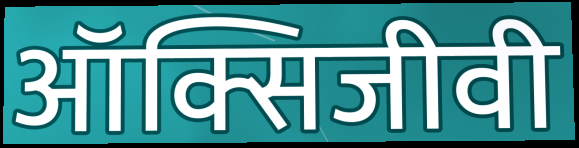
ऑक्सिजीवी